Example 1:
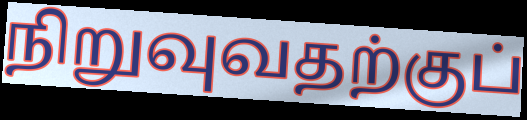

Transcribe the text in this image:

நிறுவுவதற்குப்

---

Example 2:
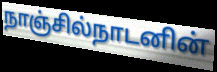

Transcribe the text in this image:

நாஞ்சில்நாடனின்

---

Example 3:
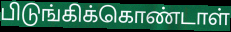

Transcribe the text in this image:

பிடுங்கிக்கொண்டாள்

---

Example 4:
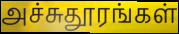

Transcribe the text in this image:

அச்சுதூரங்கள்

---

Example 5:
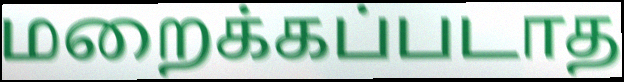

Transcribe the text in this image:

மறைக்கப்படாத